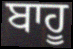
ਬਾਹੂ